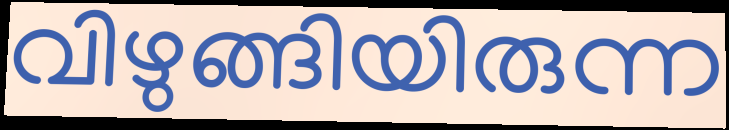
വിഴുങ്ങിയിരുന്ന